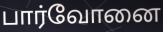
பார்வோனை